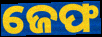
ଜେଫ